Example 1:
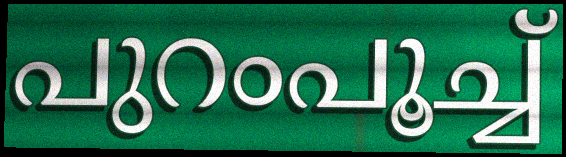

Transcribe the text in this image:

പുറംപൂച്ച്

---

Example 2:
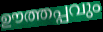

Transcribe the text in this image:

ഊത്തപ്പവും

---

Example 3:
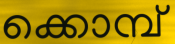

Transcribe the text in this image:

ക്കൊമ്പ്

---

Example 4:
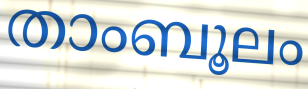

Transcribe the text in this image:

താംബൂലം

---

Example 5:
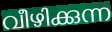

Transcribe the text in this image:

വീഴിക്കുന്ന